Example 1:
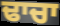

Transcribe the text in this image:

ਢਾਚਾ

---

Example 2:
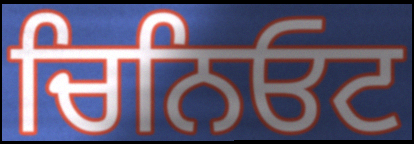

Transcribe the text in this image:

ਚਿਨਿਓਟ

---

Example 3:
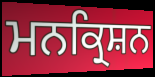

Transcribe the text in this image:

ਮਨਕ੍ਰਿਸ਼ਨ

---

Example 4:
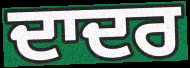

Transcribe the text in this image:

ਦਾਦਰ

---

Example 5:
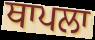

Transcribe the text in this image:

ਥਾਪਲਾ